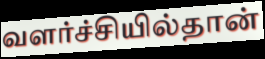
வளர்ச்சியில்தான்